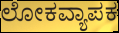
ಲೋಕವ್ಯಾಪಕ